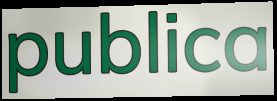
publica